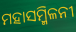
ମହାସମ୍ମିଳନୀ